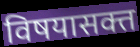
विषयासक्त